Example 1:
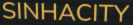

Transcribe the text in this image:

SINHACITY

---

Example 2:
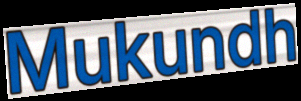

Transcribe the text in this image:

Mukundh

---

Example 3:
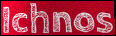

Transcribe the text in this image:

Ichnos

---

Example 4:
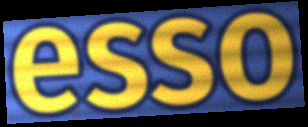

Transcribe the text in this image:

esso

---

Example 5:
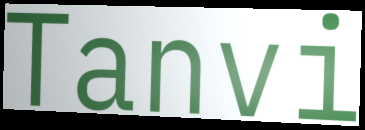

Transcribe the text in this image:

Tanvi